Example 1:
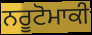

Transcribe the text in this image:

ਨਰੂਟੋਮਾਕੀ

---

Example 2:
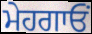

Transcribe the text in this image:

ਮੇਹਗਾਓਂ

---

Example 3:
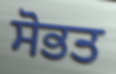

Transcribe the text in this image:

ਸੋਭਤ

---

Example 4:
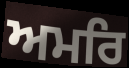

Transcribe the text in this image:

ਅਮਰਿ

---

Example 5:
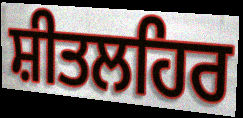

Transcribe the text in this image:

ਸ਼ੀਤਲਹਿਰ